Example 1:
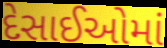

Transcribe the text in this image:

દેસાઈઓમાં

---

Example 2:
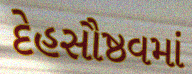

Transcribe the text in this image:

દેહસૌષ્ઠવમાં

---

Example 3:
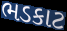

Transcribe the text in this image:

ભડકાટ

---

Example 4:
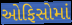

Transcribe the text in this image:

ઓફિસોમાં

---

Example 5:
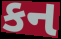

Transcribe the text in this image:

કન